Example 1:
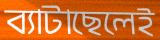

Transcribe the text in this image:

ব্যাটাছেলেই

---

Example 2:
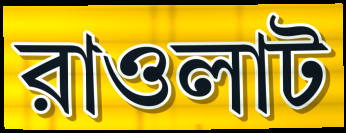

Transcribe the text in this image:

রাওলাট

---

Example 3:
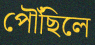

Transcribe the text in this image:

পৌঁছিলে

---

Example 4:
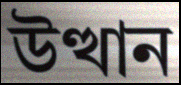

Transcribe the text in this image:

উত্থান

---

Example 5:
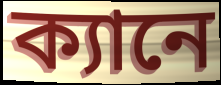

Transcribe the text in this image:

ক্যানে